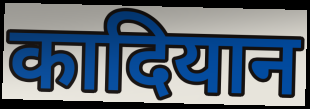
कादियान